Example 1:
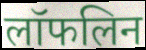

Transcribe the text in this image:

लॉफलिन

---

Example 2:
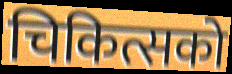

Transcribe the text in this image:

चिकित्सको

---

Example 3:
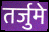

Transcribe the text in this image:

तर्जुमे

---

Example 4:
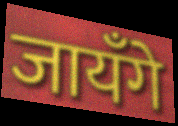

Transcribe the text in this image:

जायँगे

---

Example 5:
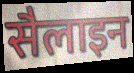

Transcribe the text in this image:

सैलाइन